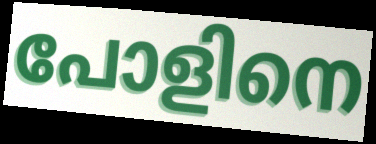
പോളിനെ